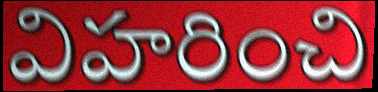
విహరించి